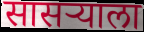
सासऱ्याला